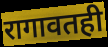
रागावतही